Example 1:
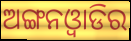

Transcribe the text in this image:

ଅଙ୍ଗନଓ୍ବାଡିର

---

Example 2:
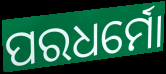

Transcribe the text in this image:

ପରଧର୍ମୋ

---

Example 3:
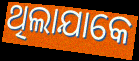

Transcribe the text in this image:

ଥିଲାଯାକେ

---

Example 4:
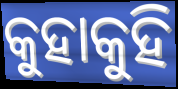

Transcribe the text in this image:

କୁହାକୁହି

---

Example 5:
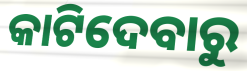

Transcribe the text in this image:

କାଟିଦେବାରୁ